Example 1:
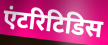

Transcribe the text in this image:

एंटरिटिडिस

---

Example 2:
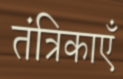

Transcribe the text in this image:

तंत्रिकाएँ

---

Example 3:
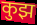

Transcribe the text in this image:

कुझ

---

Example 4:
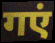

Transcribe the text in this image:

गएं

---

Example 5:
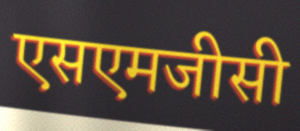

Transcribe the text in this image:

एसएमजीसी